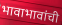
भावाभावांची